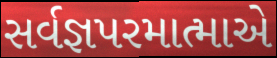
સર્વજ્ઞપરમાત્માએ